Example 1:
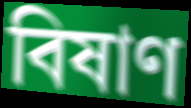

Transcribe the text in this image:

বিষাণ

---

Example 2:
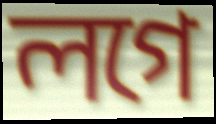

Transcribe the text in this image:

লগে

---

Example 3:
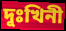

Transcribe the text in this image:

দুঃখিনী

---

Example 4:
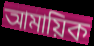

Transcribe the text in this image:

আমায়িক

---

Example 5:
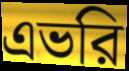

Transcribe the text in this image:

এভরি